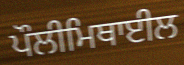
ਪੌਲੀਮਿਥਾਈਲ